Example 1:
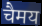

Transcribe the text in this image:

चैमय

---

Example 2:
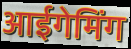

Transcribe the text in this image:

आईगेमिंग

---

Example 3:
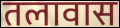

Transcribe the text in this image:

तलावास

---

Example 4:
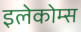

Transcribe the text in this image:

इलेकोम्स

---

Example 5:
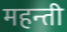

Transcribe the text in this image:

महन्ती